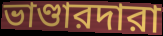
ভাণ্ডারদারা